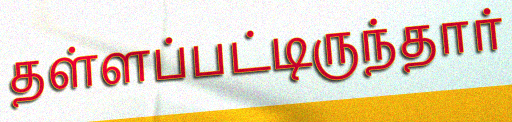
தள்ளப்பட்டிருந்தார்